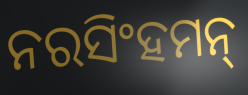
ନରସିଂହମନ୍